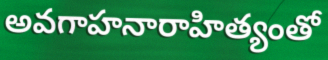
అవగాహనారాహిత్యంతో